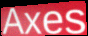
Axes